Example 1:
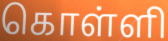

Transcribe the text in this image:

கொள்ளி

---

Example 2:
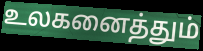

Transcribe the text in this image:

உலகனைத்தும்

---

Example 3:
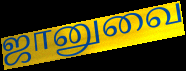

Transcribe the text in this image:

ஜானுவை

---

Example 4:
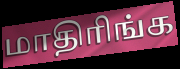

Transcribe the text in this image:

மாதிரிங்க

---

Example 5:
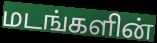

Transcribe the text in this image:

மடங்களின்